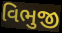
વિભુજી